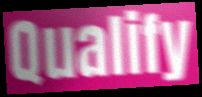
Qualify